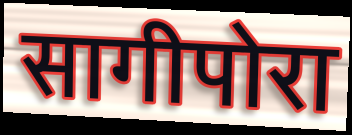
सागीपोरा